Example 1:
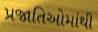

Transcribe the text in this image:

પ્રજાતિઓમાંથી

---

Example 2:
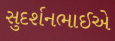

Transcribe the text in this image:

સુદર્શનભાઈએ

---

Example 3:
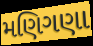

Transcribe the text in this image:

મણિગણા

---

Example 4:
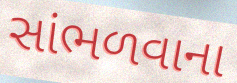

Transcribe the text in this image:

સાંભળવાના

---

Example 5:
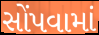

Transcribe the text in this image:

સોંપવામાં